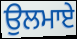
ਉਲਮਾਏ